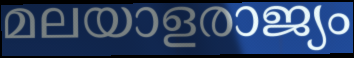
മലയാളരാജ്യം